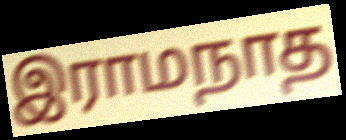
இராமநாத